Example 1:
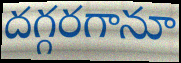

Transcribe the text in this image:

దగ్గరగానూ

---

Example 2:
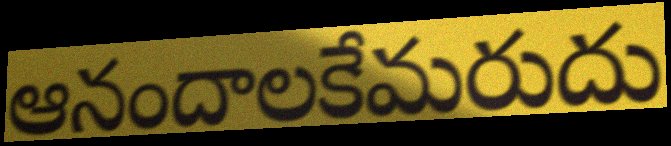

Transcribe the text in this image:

ఆనందాలకేమరుదు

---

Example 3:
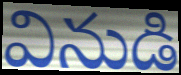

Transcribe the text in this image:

వినుడి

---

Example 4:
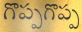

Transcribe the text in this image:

గొప్పగొప్ప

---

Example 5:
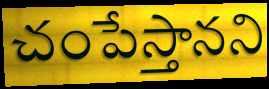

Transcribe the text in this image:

చంపేస్తానని